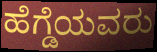
ಹೆಗ್ಡೆಯವರು